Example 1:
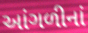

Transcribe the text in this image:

આંગળીનાં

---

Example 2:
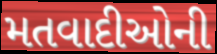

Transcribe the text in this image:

મતવાદીઓની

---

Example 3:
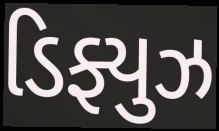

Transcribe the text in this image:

ડિફ્યુઝ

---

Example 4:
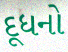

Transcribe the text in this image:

દૂધનો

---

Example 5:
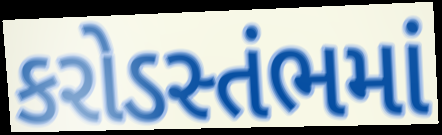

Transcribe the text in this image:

કરોડસ્તંભમાં